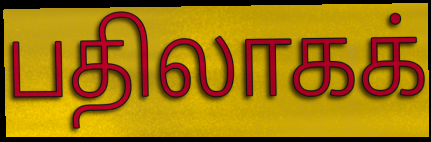
பதிலாகக்